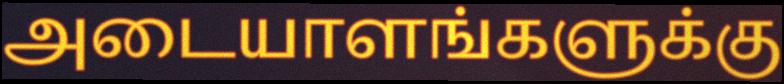
அடையாளங்களுக்கு